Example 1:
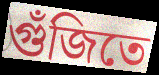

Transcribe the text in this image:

গুঁজিতে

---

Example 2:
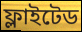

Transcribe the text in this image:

ফ্লাইটেড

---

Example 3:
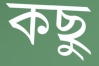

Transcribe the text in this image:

কছু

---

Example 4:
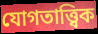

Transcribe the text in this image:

যোগতাত্ত্বিক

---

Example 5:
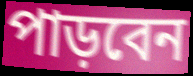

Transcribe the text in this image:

পাড়বেন